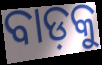
ବାଡ଼କୁ